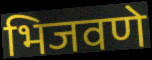
भिजवणे